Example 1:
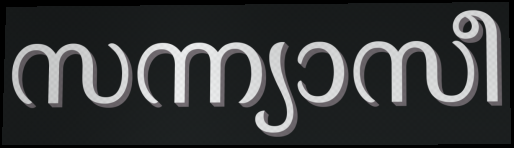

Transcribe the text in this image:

സന്ന്യാസീ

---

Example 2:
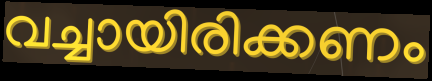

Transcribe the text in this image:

വച്ചായിരിക്കണം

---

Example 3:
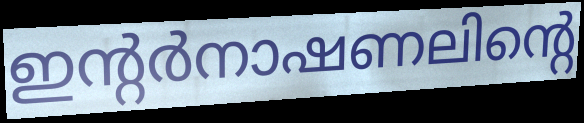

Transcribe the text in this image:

ഇന്റർനാഷണലിന്റെ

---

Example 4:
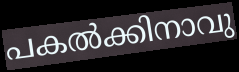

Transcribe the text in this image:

പകൽക്കിനാവു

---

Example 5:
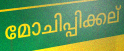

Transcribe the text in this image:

മോചിപ്പിക്കല്